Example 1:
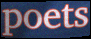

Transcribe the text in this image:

poets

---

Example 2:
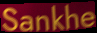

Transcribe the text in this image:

Sankhe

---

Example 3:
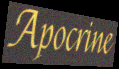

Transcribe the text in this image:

Apocrine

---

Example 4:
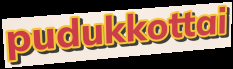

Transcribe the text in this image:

pudukkottai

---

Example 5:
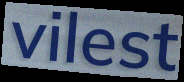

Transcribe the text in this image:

vilest